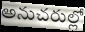
అనుచరుల్లో